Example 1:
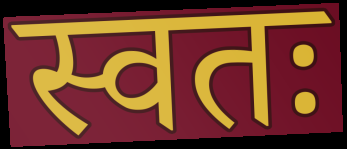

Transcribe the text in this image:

स्वतः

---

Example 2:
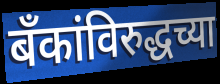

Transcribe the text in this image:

बँकांविरुद्धच्या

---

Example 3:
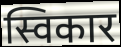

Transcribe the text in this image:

स्विकार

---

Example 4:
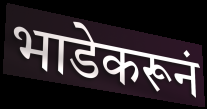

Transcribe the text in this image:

भाडेकरूनं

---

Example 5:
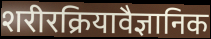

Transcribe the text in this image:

शरीरक्रियावैज्ञानिक